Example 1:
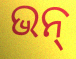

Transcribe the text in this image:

ଭନ୍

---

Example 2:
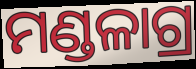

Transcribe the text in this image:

ମଣ୍ଡଳାଗ୍ର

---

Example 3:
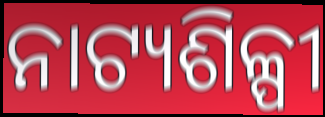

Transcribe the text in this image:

ନାଟ୍ୟଶିଳ୍ପୀ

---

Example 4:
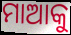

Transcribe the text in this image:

ମାଆକୁ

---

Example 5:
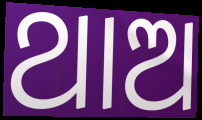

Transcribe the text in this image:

ଥାଅ